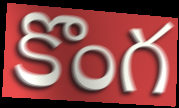
కొంగ